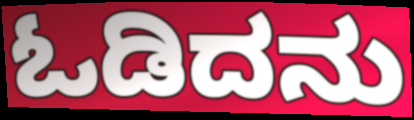
ಓಡಿದನು